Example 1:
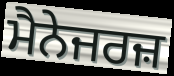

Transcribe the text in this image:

ਮੈਨੇਜਰਜ਼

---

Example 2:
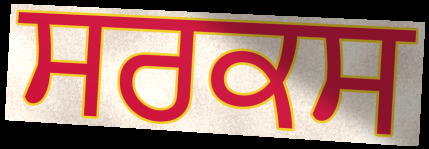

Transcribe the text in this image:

ਸਰਕਸ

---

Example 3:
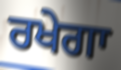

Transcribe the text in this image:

ਰਖੇਗਾ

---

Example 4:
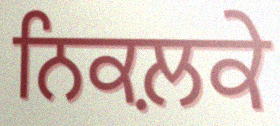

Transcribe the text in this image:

ਨਿਕਲ਼ਕੇ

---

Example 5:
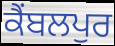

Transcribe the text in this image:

ਕੈਂਬਲਪੁਰ